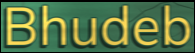
Bhudeb